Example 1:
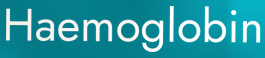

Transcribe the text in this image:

Haemoglobin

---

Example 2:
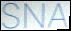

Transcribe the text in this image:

SNA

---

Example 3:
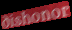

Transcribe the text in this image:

dishonor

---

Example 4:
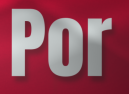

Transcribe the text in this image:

Por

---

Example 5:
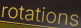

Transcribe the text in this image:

rotations